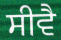
ਸੀਵੈ